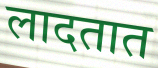
लादतात